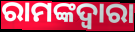
ରାମଙ୍କଦ୍ଵାରା